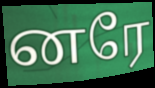
னரே